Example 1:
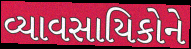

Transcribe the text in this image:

વ્યાવસાયિકોને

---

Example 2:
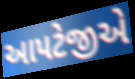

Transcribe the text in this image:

આપટેજીએ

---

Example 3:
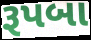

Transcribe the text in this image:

રૂપબા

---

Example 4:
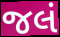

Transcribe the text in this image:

જલં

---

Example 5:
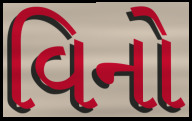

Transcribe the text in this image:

વિનો